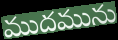
ముదమును